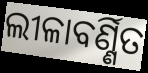
ଲୀଳାବର୍ଣ୍ଣିତ